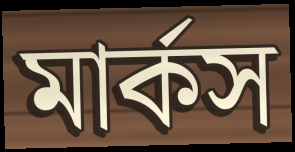
মার্কস